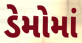
ડેમોમાં